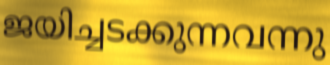
ജയിച്ചടക്കുന്നവന്നു